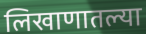
लिखाणातल्या